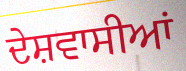
ਦੇਸ਼ਵਾਸੀਆਂ